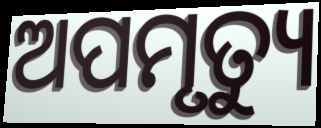
ଅପମୃତ୍ୟୁ